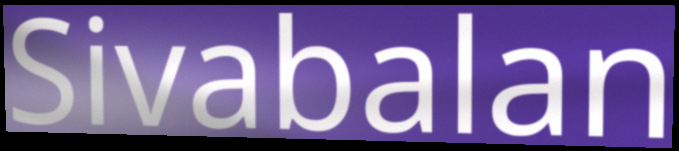
Sivabalan